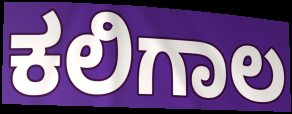
ಕಲಿಗಾಲ